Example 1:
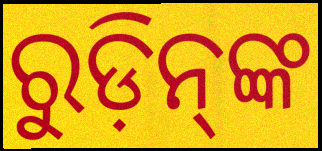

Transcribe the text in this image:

ରୁଡ଼ିନ୍‌ଙ୍କ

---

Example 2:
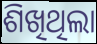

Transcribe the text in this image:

ଶିଖିଥିଲା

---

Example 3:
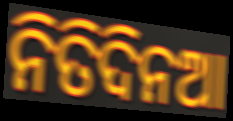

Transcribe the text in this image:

ନିତିଦିନଆ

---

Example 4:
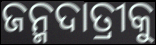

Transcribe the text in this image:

ଜନ୍ମଦାତ୍ରୀକୁ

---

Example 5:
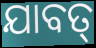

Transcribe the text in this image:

ଯାବତ୍